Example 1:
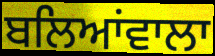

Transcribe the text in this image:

ਬਲਿਆਂਵਾਲਾ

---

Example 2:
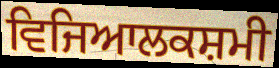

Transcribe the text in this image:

ਵਿਜਿਆਲਕਸ਼ਮੀ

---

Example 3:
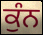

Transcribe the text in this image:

ਕੁੰਨ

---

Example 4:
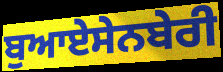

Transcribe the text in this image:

ਬੁਆਏਸੇਨਬੇਰੀ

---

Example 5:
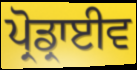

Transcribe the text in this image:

ਪ੍ਰੋਡ੍ਰਾਈਵ